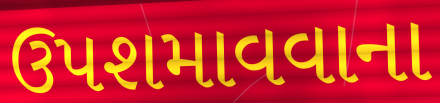
ઉપશમાવવાના